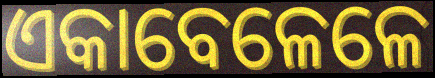
ଏକାବେଳେଳେ